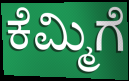
ಕೆಮ್ಮಿಗೆ